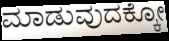
ಮಾಡುವುದಕ್ಕೋ